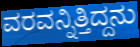
ವರವನ್ನಿತ್ತಿದ್ದನು